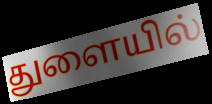
துளையில்